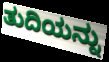
ತುದಿಯನ್ನು